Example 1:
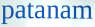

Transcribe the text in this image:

patanam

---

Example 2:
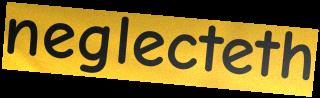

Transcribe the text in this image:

neglecteth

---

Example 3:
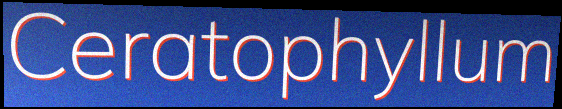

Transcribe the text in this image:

Ceratophyllum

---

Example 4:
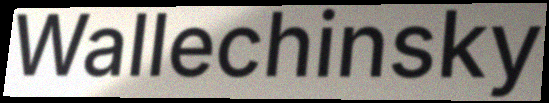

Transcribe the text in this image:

Wallechinsky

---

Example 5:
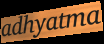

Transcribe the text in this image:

adhyatma